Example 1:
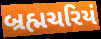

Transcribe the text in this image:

બ્રહ્મચરિયં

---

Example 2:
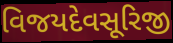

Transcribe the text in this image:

વિજયદેવસૂરિજી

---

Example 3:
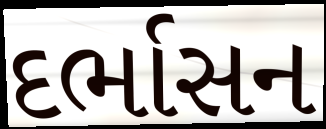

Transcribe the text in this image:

દર્ભાસન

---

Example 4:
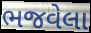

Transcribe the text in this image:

ભજવેલા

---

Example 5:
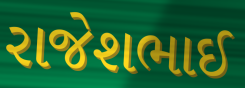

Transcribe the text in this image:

રાજેશભાઈ